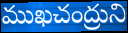
ముఖచంద్రుని